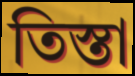
তিস্তা